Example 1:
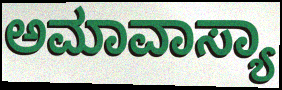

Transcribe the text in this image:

ಅಮಾವಾಸ್ಯಾ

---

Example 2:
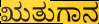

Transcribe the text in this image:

ಋತುಗಾನ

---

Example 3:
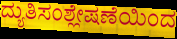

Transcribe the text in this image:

ದ್ಯುತಿಸಂಶ್ಲೇಷಣೆಯಿಂದ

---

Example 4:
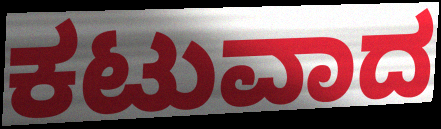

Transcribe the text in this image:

ಕಟುವಾದ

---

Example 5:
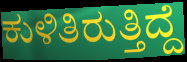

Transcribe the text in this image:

ಕುಳಿತಿರುತ್ತಿದ್ದೆ